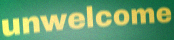
unwelcome